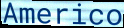
Americo